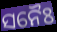
ସନୈଃ